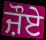
ਜ਼ੌਏ